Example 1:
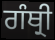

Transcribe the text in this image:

ਗੰਥ੍ਰੀ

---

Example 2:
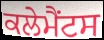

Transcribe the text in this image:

ਕਲੇਮੈਂਟਸ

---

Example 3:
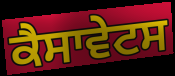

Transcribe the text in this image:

ਕੈਸਾਵੇਟਸ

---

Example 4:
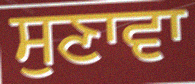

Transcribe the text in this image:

ਸੁਣਾਵਾ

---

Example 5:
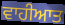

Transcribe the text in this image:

ਵਾਹੀਆਤ